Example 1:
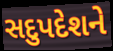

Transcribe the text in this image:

સદુપદેશને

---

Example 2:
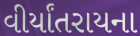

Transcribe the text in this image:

વીર્યાંતરાયના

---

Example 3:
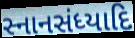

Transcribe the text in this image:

સ્નાનસંધ્યાદિ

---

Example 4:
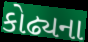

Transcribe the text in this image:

કોઢ્યના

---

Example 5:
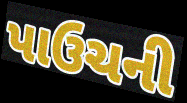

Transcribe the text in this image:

પાઉચની